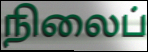
நிலைப்